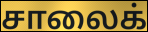
சாலைக்